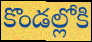
కొండల్లోకి